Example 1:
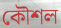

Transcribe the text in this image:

কৌশল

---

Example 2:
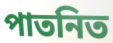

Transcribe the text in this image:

পাতনিত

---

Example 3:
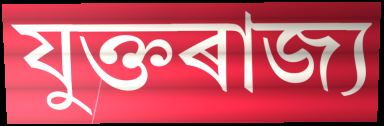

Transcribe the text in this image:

যুক্তৰাজ্য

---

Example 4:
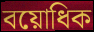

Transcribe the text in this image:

বয়োধিক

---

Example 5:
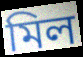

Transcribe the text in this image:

মিল